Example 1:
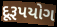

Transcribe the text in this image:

દૂરૂપયોગ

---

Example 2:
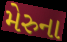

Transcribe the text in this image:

મેરુના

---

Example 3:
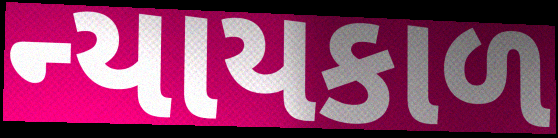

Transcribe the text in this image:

ન્યાયકાળ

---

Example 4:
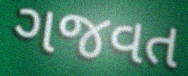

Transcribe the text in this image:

ગજવત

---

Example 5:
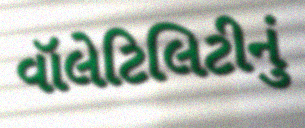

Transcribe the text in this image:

વૉલેટિલિટીનું